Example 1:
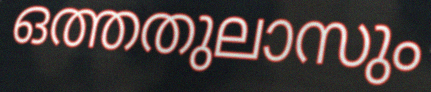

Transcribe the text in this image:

ഒത്തതുലാസും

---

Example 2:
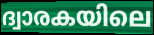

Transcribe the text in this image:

ദ്വാരകയിലെ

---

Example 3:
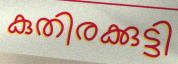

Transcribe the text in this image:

കുതിരക്കുട്ടി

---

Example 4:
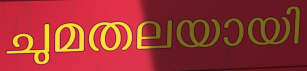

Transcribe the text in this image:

ചുമതലയായി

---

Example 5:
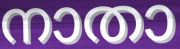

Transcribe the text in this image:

നാതാ